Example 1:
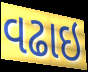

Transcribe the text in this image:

વઢાઇ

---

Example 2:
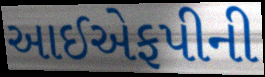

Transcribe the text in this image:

આઈએફપીની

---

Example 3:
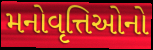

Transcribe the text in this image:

મનોવૃત્તિઓનો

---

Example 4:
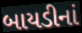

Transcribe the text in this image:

બાયડીનાં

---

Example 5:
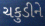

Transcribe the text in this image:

ચકુડીને